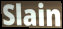
Slain